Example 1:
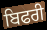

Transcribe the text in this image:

ਬਿਫਰੀ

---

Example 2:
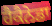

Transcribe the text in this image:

ਹੈਕੈਨੇਡਾ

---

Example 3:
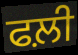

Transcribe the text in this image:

ਫਲ਼ੀ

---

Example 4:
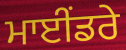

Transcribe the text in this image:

ਮਾਈਂਡਰੇ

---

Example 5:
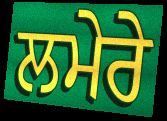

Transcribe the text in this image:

ਲਮੇਰੇ